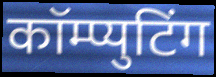
कॉम्प्युटिंग